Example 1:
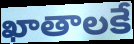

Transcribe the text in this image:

ఖాతాలకే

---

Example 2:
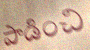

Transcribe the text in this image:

పాడించి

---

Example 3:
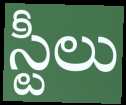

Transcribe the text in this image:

స్టీలు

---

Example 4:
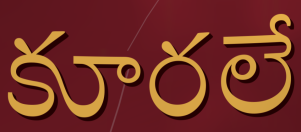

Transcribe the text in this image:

కూరలే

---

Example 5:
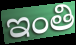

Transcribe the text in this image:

ఇంతి